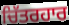
ਚਿੱਤਰਹਾਰ